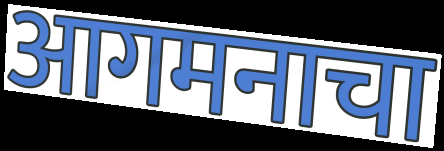
आगमनाचा